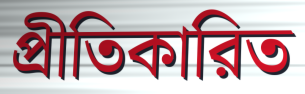
প্রীতিকারিত